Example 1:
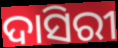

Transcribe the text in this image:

ଦାସିରୀ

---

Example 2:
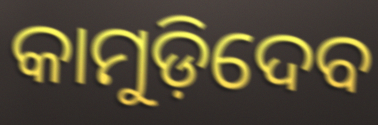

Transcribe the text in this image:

କାମୁଡ଼ିଦେବ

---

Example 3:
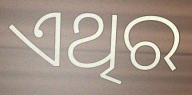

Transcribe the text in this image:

ଏଥିର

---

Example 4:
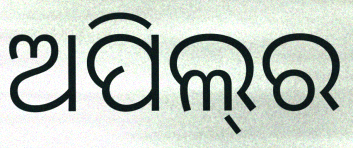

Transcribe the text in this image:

ଅପିଲ୍‌ର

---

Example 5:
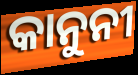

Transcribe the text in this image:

କାନୁନୀ